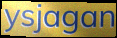
ysjagan